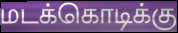
மடக்கொடிக்கு